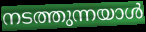
നടത്തുന്നയാൾ